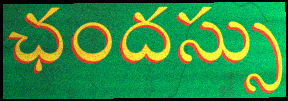
ఛందస్సు